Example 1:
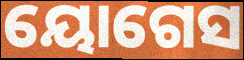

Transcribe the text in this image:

ୟୋଗେସ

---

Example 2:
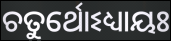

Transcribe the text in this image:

ଚତୁର୍ଥୋଽଧ୍ୟାୟଃ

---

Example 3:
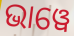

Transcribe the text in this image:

ଭାୱେ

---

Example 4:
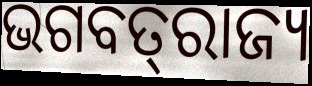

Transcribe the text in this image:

ଭଗବତ୍‌ରାଜ୍ୟ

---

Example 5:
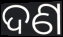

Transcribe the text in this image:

ଦଣ